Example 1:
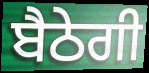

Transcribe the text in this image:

ਬੈਠੇਗੀ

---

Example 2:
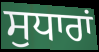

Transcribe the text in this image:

ਸੁਧਾਰਾਂ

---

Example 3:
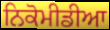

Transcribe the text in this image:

ਨਿਕੋਮੀਡੀਆ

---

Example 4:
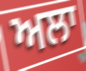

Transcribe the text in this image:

ਅਲਾ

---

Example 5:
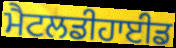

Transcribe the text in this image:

ਮੈਟਲਡੀਹਾਈਡ